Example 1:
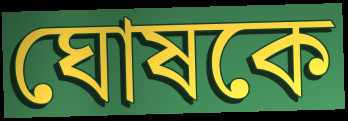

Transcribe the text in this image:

ঘোষকে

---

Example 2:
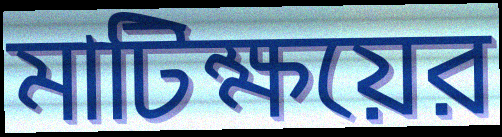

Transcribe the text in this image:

মাটিক্ষয়ের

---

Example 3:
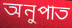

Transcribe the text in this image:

অনুপাত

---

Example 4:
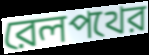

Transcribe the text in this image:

রেলপথের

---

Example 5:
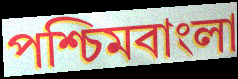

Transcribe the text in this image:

পশ্চিমবাংলা